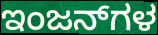
ಇಂಜನ್‌ಗಳ